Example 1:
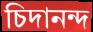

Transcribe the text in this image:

চিদানন্দ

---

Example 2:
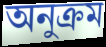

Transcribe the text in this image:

অনুক্ৰম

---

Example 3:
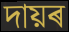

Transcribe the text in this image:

দায়ৰ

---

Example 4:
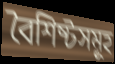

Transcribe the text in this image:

বৈশিষ্টসমূহ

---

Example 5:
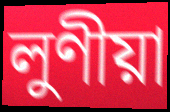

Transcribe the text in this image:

লুণীয়া